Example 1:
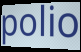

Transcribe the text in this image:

polio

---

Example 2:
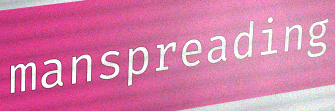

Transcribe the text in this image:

manspreading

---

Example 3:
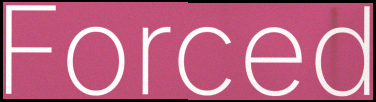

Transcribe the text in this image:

Forced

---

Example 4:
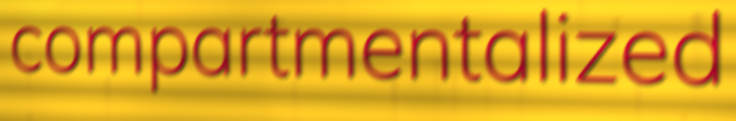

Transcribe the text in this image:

compartmentalized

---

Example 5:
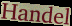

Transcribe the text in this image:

Handel